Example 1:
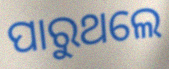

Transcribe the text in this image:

ପାରୁଥଲେ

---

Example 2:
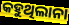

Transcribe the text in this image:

କହୁଥିଲାନା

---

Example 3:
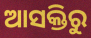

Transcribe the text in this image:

ଆସକ୍ତିରୁ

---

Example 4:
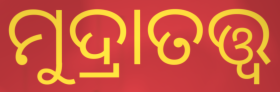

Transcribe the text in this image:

ମୁଦ୍ରାତତ୍ତ୍ବ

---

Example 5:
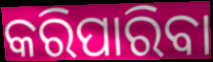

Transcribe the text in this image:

କରିପାରିବା